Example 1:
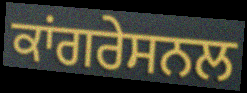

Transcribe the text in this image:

ਕਾਂਗਰੇਸਨਲ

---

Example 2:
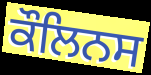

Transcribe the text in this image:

ਕੌਲਿਨਸ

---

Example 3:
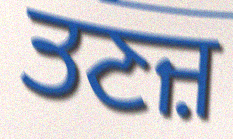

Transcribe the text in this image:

ਤਣਜ਼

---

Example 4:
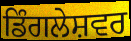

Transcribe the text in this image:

ਡਿੰਗਲੇਸ਼ਵਰ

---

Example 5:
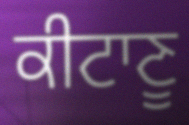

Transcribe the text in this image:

ਕੀਟਾਣੂ